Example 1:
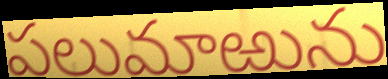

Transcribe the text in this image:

పలుమాఱును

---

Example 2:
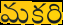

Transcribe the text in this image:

మకరి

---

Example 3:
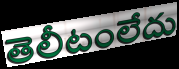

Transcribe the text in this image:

తెలీటంలేదు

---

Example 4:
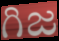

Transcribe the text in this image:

గిజ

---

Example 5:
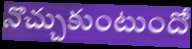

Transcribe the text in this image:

నొచ్చుకుంటుందో